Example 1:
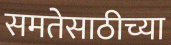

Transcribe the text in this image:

समतेसाठीच्या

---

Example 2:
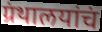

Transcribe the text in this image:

ग्रंथालयांचं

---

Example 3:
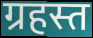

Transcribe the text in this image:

ग्रहस्त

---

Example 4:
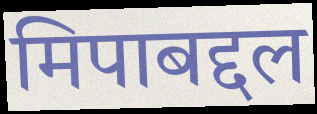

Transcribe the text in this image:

मिपाबद्दल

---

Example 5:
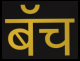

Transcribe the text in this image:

बॅच